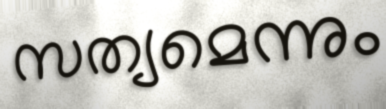
സത്യമെന്നും